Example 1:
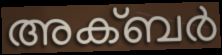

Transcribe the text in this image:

അക്ബർ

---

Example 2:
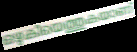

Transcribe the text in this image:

ഒഴുകിയെത്തുകയാണ്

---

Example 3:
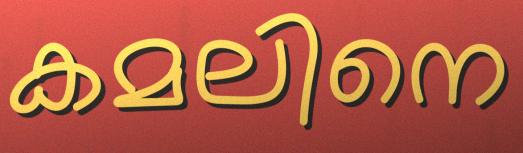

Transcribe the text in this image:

കമലിനെ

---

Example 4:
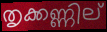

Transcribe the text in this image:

തൃക്കണ്ണില്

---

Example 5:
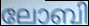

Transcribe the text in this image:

ലോബി